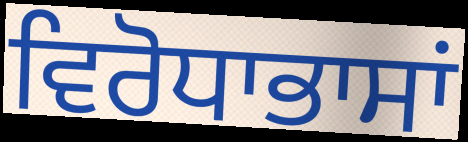
ਵਿਰੋਧਾਭਾਸਾਂ